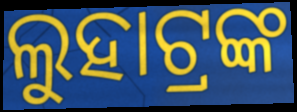
ଲୁହାଟ୍ରଙ୍କ